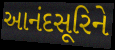
આનંદસૂરિને